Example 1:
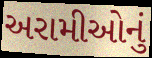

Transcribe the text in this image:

અરામીઓનું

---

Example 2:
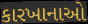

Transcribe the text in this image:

કારખાનાઓ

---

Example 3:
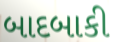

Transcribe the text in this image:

બાદબાકી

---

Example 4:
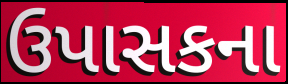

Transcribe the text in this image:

ઉપાસકના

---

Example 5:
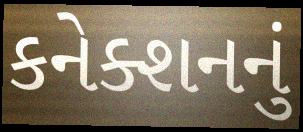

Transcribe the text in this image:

કનેક્શનનું